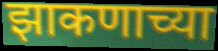
झाकणाच्या